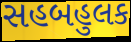
સહબહુલક